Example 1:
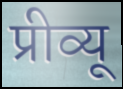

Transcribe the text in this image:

प्रीव्यू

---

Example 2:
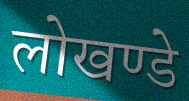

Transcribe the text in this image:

लोखण्डे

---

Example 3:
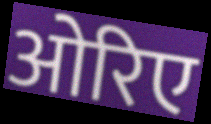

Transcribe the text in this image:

ओरिए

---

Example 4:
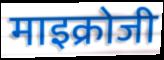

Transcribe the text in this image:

माइक्रोजी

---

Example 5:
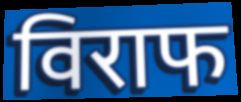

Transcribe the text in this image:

विराफ